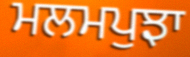
ਮਲਮਪੁਝਾ